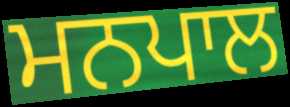
ਮਨਪਾਲ